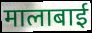
मालाबाई